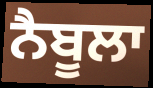
ਨੈਬੂਲਾ